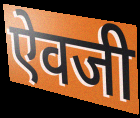
ऐवजी